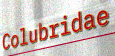
Colubridae